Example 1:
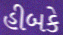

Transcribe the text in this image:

હીબકે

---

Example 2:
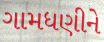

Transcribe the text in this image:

ગામધણીને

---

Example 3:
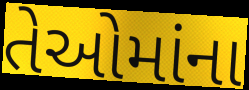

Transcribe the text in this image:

તેઓમાંના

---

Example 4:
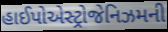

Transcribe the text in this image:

હાઈપોએસ્ટ્રોજેનિઝમની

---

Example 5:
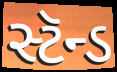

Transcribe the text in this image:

સ્ટૅન્ડ